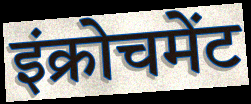
इंक्रोचमेंट